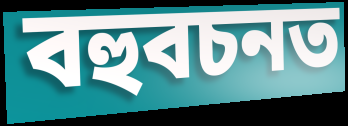
বহুবচনত